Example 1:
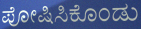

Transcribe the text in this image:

ಪೋಷಿಸಿಕೊಂಡು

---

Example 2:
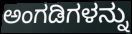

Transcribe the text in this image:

ಅಂಗಡಿಗಳನ್ನು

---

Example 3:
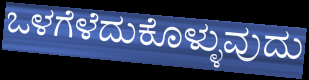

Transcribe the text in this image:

ಒಳಗೆಳೆದುಕೊಳ್ಳುವುದು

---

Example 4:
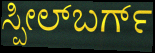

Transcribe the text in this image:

ಸ್ಪೀಲ್‌ಬರ್ಗ್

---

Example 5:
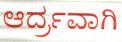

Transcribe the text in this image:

ಆರ್ದ್ರವಾಗಿ